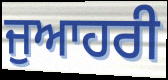
ਜੁਆਹਰੀ